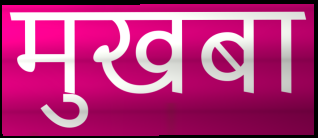
मुखबा